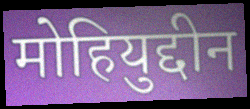
मोहियुद्दीन